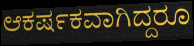
ಆಕರ್ಷಕವಾಗಿದ್ದರೂ